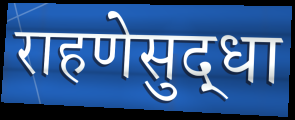
राहणेसुद्धा